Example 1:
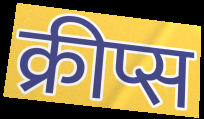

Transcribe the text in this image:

क्रीप्स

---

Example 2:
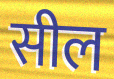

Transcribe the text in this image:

सील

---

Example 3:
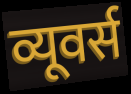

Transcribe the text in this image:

व्यूवर्स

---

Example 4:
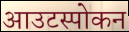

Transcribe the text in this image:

आउटस्पोकन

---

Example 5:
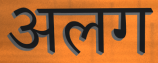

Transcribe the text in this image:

अलग